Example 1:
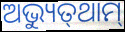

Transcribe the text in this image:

ଅଭ୍ୟୁତ୍‌ଥାମ୍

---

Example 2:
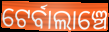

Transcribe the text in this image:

ଟେର୍ବାଲାଞ୍ଚେ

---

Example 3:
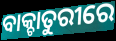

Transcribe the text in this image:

ବାକ୍ଚାତୁରୀରେ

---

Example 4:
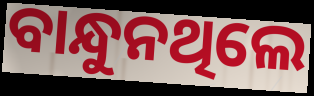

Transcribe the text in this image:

ବାନ୍ଧୁନଥିଲେ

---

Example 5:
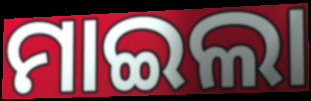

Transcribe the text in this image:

ମାଇଲା